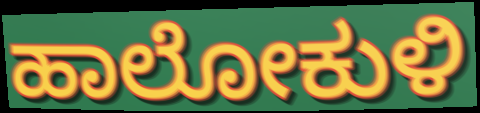
ಹಾಲೋಕುಳಿ